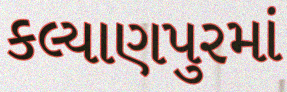
કલ્યાણપુરમાં